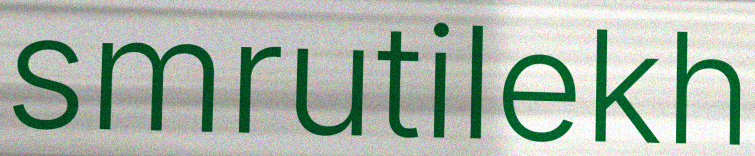
smrutilekh